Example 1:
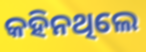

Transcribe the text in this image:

କହିନଥିଲେ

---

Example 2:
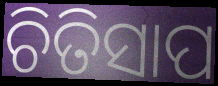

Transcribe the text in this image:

ଚିତିସାପ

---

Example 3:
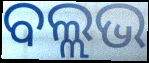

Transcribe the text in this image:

ବଲ୍ଲଭ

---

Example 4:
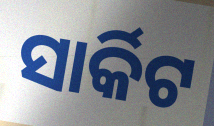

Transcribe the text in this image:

ସାର୍କିଟ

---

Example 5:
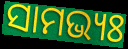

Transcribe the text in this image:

ସାମଭ୍ୟଃ